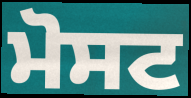
ਮੋਸਟ